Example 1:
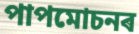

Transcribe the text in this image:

পাপমোচনৰ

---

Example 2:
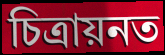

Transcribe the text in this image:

চিত্ৰায়নত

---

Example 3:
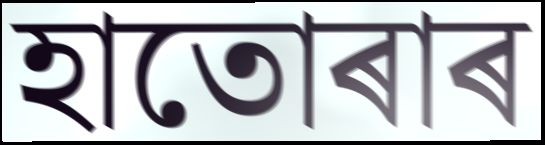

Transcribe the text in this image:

হাতোৰাৰ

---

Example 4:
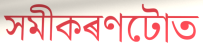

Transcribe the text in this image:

সমীকৰণটোত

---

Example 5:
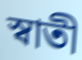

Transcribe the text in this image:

স্বাতী